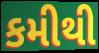
કમીથી